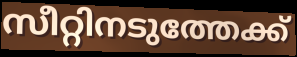
സീറ്റിനടുത്തേക്ക്